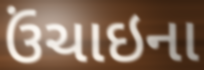
ઉંચાઇના